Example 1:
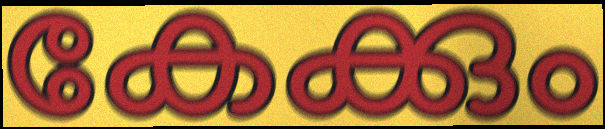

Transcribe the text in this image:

കേക്കും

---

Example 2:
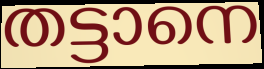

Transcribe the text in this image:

തട്ടാനെ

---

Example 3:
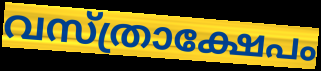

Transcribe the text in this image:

വസ്ത്രാക്ഷേപം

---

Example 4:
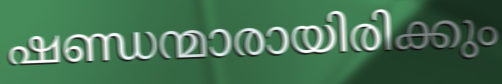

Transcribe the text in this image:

ഷണ്ഡന്മാരായിരിക്കും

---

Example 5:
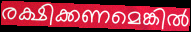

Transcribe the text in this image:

രക്ഷിക്കണമെങ്കിൽ